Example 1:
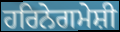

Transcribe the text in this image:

ਹਰਿਨੇਗਮੇਸ਼ੀ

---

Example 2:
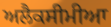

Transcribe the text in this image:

ਅਲੈਕਸੀਮੀਆ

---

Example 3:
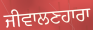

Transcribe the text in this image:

ਜੀਵਾਲਣਹਾਰਾ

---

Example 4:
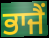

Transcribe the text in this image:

ਭਾਜੈਂ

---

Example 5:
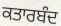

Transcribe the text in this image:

ਕਤਾਰਬੰਦ